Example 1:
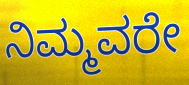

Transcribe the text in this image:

ನಿಮ್ಮವರೇ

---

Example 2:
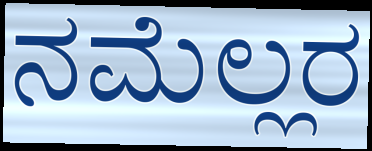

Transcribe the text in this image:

ನಮೆಲ್ಲರ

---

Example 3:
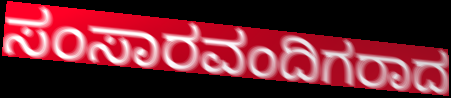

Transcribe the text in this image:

ಸಂಸಾರವಂದಿಗರಾದ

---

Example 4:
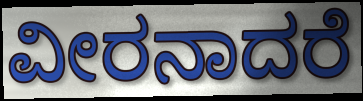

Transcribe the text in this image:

ವೀರನಾದರೆ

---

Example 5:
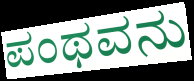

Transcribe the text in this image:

ಪಂಥವನು